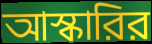
আস্কারির